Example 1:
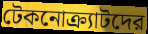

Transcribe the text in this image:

টেকনোক্র্যাটদের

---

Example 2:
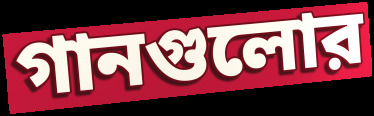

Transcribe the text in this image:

গানগুলোর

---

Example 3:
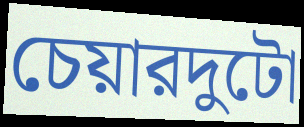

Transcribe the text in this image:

চেয়ারদুটো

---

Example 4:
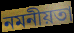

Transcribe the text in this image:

নমনীয়তা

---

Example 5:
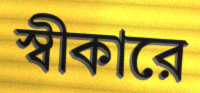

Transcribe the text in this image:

স্বীকারে